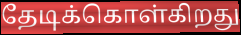
தேடிக்கொள்கிறது